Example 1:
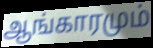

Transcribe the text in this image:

ஆங்காரமும்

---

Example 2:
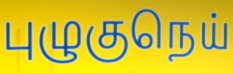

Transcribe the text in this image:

புழுகுநெய்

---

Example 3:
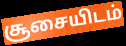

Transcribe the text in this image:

சூசையிடம்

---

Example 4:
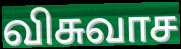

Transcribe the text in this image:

விசுவாச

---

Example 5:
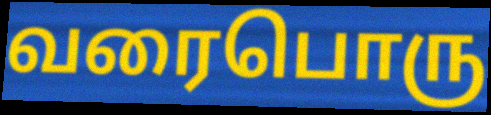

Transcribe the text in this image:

வரைபொரு